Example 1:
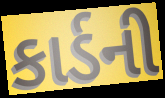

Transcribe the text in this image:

કાર્ડની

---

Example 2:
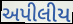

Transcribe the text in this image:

અપીલીય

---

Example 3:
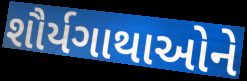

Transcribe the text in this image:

શૌર્યગાથાઓને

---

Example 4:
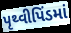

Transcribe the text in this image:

પૃથ્વીપિંડમાં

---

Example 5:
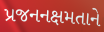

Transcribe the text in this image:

પ્રજનનક્ષમતાને